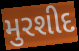
મુરશીદ